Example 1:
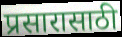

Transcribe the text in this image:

प्रसारासाठी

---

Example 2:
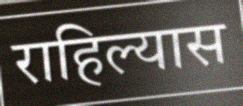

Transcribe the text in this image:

राहिल्यास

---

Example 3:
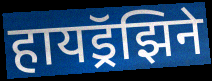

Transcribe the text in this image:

हायड्रॅझिने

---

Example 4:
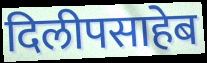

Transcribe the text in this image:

दिलीपसाहेब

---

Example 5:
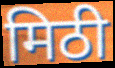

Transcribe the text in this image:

मिठी